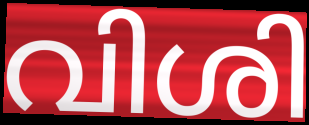
വിശി